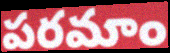
పరమాం